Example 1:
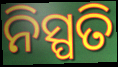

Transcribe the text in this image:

ନିସ୍ପତି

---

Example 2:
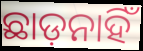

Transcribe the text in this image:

ଛାଡ଼ନାହିଁ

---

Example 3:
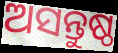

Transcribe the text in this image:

ଅସନ୍ତୁଷ୍ଠ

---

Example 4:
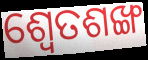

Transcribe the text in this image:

ଶ୍ୱେତଶଙ୍ଖ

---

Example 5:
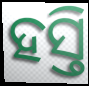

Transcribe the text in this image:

ହସ୍ତି